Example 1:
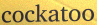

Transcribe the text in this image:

cockatoo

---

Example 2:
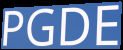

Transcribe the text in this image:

PGDE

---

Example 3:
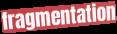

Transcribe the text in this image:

fragmentation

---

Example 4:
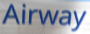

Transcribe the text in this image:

Airway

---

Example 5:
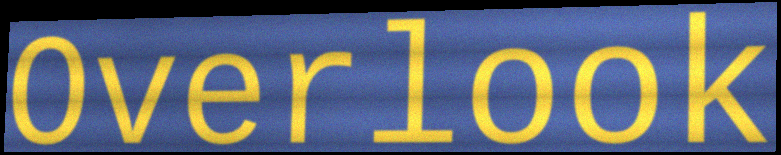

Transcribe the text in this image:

Overlook